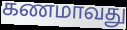
கணமாவது